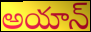
అయాన్